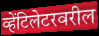
व्हेंटिलेटरवरील